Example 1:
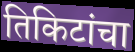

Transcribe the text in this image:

तिकिटांचा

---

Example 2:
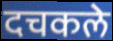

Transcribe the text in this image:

दचकले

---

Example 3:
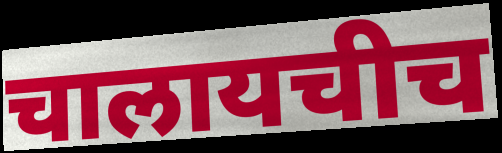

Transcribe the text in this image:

चालायचीच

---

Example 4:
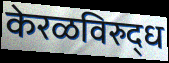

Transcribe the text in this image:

केरळविरुद्ध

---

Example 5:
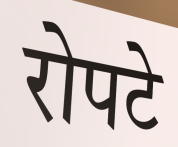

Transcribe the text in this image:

रोपटे